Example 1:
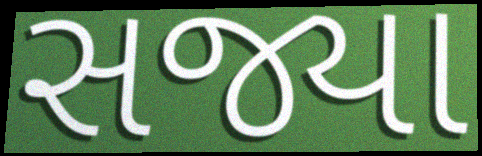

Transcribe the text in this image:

સજ્યા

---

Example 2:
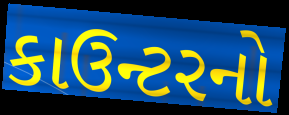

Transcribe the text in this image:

કાઉન્ટરનો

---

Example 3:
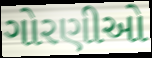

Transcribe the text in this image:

ગોરણીઓ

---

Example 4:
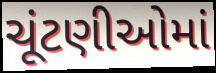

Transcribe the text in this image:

ચૂંટણીઓમાં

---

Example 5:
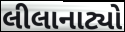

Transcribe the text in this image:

લીલાનાટ્યો